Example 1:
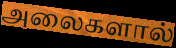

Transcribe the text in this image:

அலைகளால்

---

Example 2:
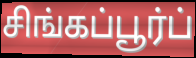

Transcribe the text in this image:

சிங்கப்பூர்ப்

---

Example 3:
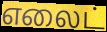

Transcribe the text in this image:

எலைட்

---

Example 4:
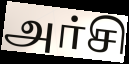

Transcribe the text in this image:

அர்சி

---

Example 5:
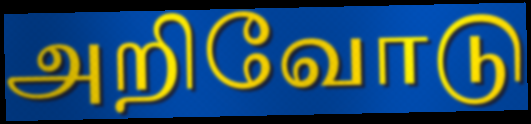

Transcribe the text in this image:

அறிவோடு